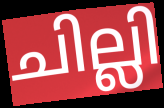
ചില്ലി